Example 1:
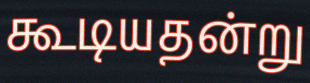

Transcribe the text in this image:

கூடியதன்று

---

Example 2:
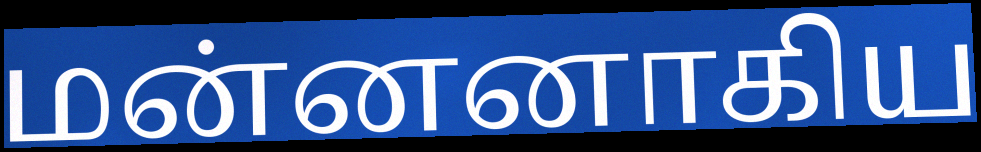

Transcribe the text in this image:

மன்னனாகிய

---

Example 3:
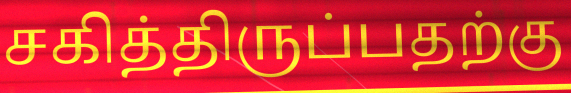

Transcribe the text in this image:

சகித்திருப்பதற்கு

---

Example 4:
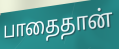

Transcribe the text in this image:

பாதைதான்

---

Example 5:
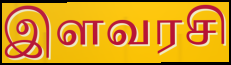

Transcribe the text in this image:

இளவரசி